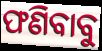
ଫଣିବାବୁ